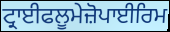
ਟ੍ਰਾਈਫਲੂਮੇਜ਼ੋਪਾਈਰਿਮ